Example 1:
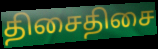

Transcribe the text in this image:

திசைதிசை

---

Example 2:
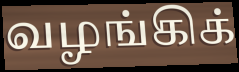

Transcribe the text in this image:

வழங்கிக்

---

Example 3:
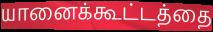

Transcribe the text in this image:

யானைக்கூட்டத்தை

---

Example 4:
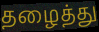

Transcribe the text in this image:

தழைத்து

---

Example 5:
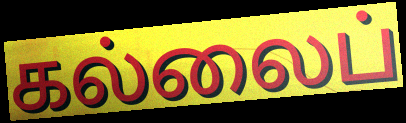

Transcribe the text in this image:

கல்லைப்